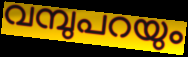
വമ്പുപറയും